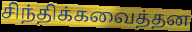
சிந்திக்கவைத்தன